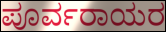
ಪೂರ್ವರಾಯರ